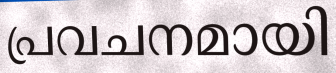
പ്രവചനമായി